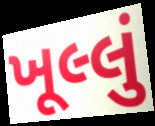
ખૂલ્લું